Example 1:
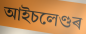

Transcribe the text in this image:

আইচলেণ্ডৰ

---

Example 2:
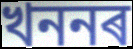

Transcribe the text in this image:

খননৰ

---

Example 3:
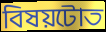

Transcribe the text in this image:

বিষয়টোত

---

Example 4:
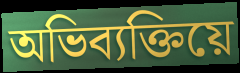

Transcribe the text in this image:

অভিব্যক্তিয়ে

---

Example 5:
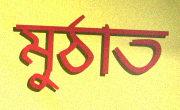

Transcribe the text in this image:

মুঠাত